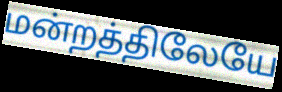
மன்றத்திலேயே